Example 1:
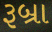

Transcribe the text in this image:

રૂબ્રા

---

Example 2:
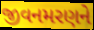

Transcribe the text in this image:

જીવનમરણને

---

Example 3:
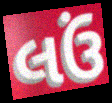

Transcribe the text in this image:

લઉં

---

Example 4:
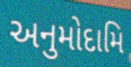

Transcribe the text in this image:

અનુમોદામિ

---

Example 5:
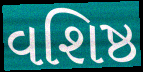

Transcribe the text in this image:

વશિષ્ઠ